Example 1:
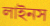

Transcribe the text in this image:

লাইনস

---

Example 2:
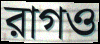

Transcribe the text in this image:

রাগও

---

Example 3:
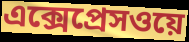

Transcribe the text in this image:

এক্সেপ্রেসওয়ে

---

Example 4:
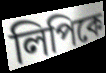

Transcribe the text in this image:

লিপিকে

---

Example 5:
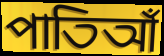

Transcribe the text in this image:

পাতিআঁ